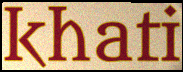
khati